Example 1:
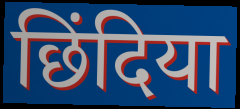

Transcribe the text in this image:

छिंदिया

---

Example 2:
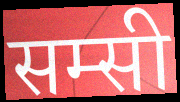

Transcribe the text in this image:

सम्सी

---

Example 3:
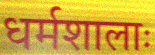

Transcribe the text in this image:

धर्मशालाः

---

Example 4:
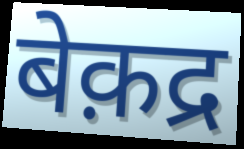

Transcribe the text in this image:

बेक़द्र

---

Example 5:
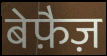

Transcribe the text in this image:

बेफ़ैज़